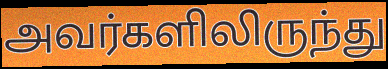
அவர்களிலிருந்து